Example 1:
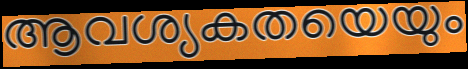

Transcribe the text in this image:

ആവശ്യകതയെയും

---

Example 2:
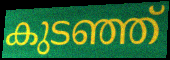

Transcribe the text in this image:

കുടഞ്ഞ്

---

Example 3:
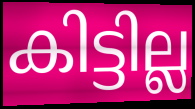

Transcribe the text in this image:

കിട്ടില്ല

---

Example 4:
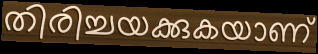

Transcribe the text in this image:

തിരിച്ചയക്കുകയാണ്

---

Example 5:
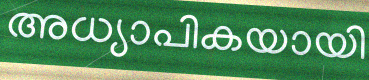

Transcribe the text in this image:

അധ്യാപികയായി